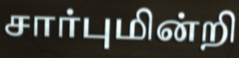
சார்புமின்றி